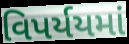
વિપર્યયમાં